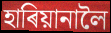
হাৰিয়ানালৈ